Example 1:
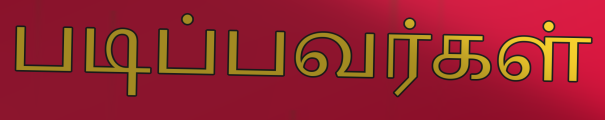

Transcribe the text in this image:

படிப்பவர்கள்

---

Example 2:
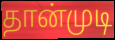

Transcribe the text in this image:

தான்முடி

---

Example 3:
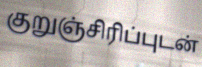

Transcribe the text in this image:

குறுஞ்சிரிப்புடன்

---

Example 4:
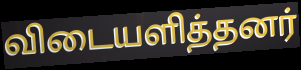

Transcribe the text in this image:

விடையளித்தனர்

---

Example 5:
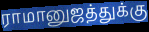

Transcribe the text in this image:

ராமானுஜத்துக்கு